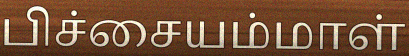
பிச்சையம்மாள்